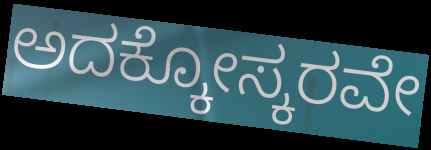
ಅದಕ್ಕೋಸ್ಕರವೇ